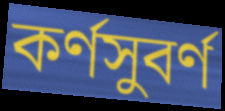
কর্ণসুবর্ণ